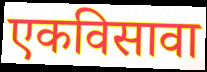
एकविसावा